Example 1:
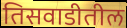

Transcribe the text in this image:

तिसवाडीतील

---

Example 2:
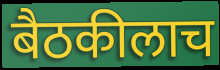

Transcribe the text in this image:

बैठकीलाच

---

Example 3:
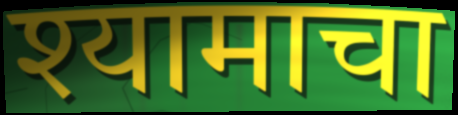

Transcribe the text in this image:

श्यामाचा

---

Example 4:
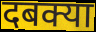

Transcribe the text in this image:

दबक्या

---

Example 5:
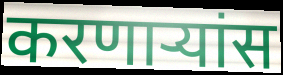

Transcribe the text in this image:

करणाऱ्यांस